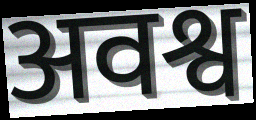
अवश्व